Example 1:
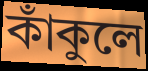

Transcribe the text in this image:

কাঁকুলে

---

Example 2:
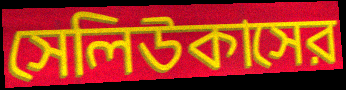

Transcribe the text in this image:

সেলিউকাসের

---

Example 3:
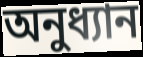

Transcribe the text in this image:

অনুধ্যান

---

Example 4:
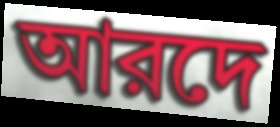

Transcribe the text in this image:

আরদে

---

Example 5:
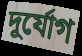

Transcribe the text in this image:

দূর্যোগ